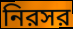
নিরসর